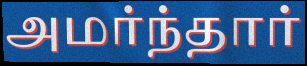
அமர்ந்தார்